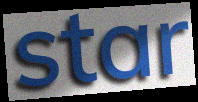
star